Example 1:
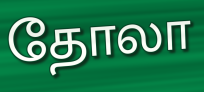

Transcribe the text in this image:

தோலா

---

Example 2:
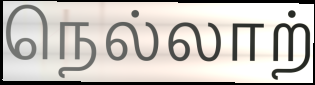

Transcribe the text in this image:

நெல்லாற்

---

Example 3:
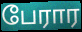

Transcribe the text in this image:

பேரார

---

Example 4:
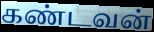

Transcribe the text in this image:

கண்டவன்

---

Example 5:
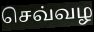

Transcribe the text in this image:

செவ்வழ